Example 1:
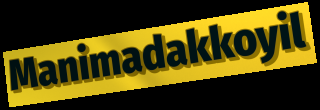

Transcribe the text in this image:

Manimadakkoyil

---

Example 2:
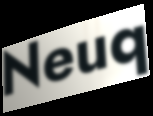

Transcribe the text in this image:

Neuq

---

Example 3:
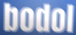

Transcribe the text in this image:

bodol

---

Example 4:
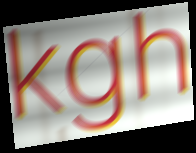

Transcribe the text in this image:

kgh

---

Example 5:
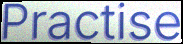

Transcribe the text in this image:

Practise